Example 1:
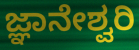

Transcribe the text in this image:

ಜ್ಞಾನೇಶ್ವರಿ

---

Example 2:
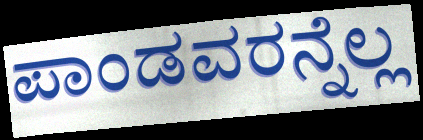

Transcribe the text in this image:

ಪಾಂಡವರನ್ನೆಲ್ಲ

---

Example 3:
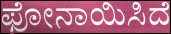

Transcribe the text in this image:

ಫೋನಾಯಿಸಿದೆ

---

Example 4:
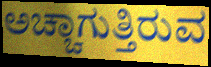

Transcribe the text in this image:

ಅಚ್ಚಾಗುತ್ತಿರುವ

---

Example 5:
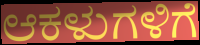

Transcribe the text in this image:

ಆಕಳುಗಳಿಗೆ